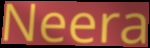
Neera